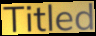
Titled